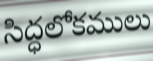
సిద్ధలోకములు